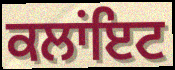
ਕਲਾਂਇਟ